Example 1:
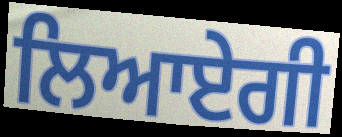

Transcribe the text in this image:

ਲਿਆਏਗੀ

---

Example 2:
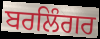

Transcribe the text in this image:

ਬਰਲਿੰਗਰ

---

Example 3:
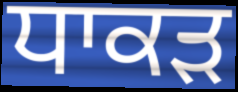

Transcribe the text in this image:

ਧਾਕੜ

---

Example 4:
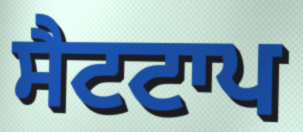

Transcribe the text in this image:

ਸੈਟਟਾਪ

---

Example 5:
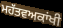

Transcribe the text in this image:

ਮਹੱਤਵਅਕਾਂਖੀ